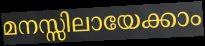
മനസ്സിലായേക്കാം